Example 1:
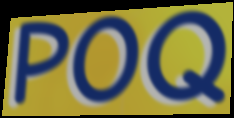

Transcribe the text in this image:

POQ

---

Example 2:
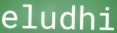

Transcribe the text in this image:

eludhi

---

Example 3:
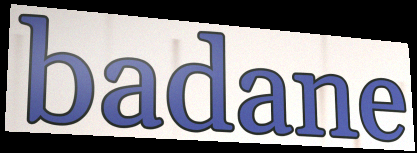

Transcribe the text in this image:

badane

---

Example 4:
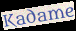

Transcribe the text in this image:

Kadame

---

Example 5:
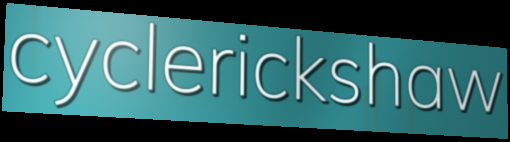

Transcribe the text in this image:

cyclerickshaw